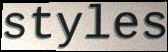
styles